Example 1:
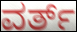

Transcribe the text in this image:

ವರ್ತ್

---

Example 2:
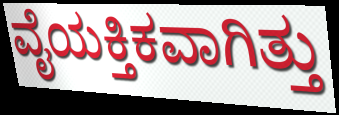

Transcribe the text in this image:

ವೈಯಕ್ತಿಕವಾಗಿತ್ತು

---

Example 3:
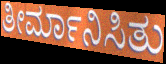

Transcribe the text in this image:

ತೀರ್ಮಾನಿಸಿತು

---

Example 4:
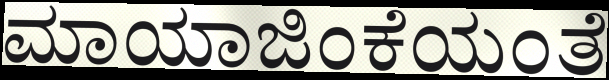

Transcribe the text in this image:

ಮಾಯಾಜಿಂಕೆಯಂತೆ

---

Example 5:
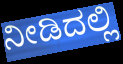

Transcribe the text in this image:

ನೀಡಿದಲ್ಲಿ